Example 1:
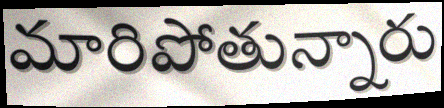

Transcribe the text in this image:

మారిపోతున్నారు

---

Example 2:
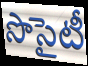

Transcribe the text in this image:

సొసైటీ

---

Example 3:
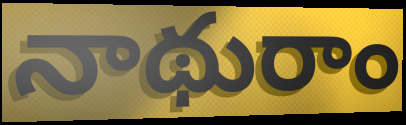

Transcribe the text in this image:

నాథురాం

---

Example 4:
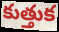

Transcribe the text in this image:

కుత్తుక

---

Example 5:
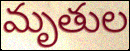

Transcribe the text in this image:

మృతుల